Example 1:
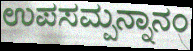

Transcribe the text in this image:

ಉಪಸಮ್ಪನ್ನಾನಂ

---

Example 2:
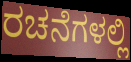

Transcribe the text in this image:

ರಚನೆಗಳಲ್ಲಿ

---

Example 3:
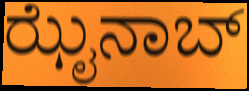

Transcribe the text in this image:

ಝೈನಾಬ್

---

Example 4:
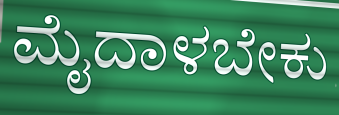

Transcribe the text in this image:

ಮೈದಾಳಬೇಕು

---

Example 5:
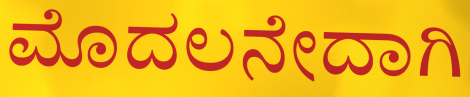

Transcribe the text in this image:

ಮೊದಲನೇದಾಗಿ